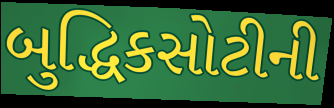
બુદ્ધિકસોટીની